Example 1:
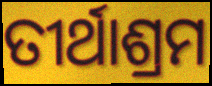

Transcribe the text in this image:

ତୀର୍ଥାଶ୍ରମ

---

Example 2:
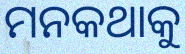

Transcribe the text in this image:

ମନକଥାକୁ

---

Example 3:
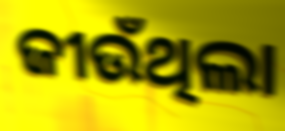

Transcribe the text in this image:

ଜୀଉଁଥିଲା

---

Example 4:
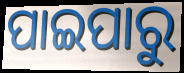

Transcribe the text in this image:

ପାଇପାରୁ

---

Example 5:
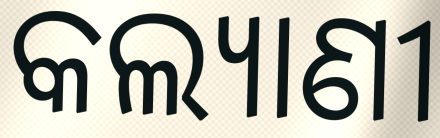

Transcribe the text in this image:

କଲ୍ୟାଣୀ